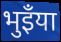
भुइँया